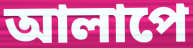
আলাপে